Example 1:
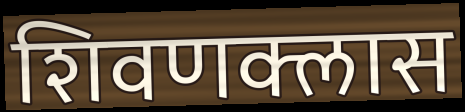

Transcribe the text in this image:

शिवणक्लास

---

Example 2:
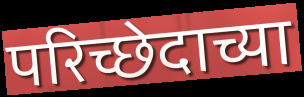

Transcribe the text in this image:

परिच्छेदाच्या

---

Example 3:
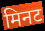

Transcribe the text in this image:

मिनट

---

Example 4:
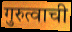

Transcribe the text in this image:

गुरुत्वाची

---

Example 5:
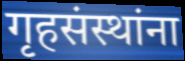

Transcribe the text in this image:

गृहसंस्थांना